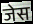
जेस